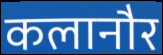
कलानौर